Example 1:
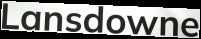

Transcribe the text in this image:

Lansdowne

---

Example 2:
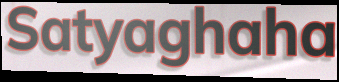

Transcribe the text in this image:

Satyaghaha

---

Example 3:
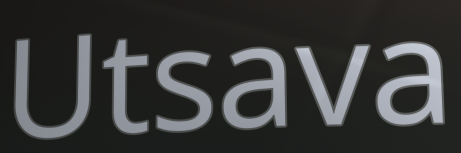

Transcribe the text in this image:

Utsava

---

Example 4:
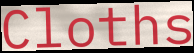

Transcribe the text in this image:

Cloths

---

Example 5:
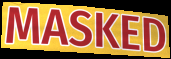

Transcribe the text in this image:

MASKED